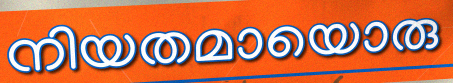
നിയതമായൊരു